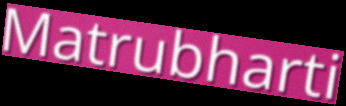
Matrubharti